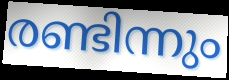
രണ്ടിന്നും